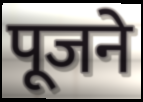
पूजने